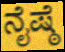
ನೈಷ್ಠೆ